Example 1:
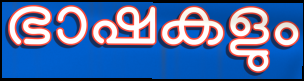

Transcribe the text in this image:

ഭാഷകളും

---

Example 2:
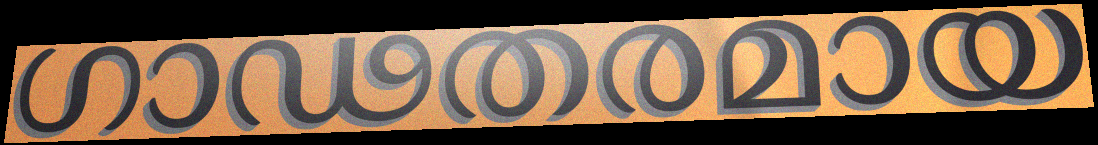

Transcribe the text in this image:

ഗാഢതരമായ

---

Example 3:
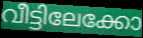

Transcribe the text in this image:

വീട്ടിലേക്കോ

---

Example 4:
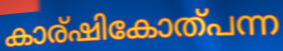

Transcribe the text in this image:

കാര്ഷികോത്പന്ന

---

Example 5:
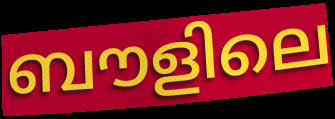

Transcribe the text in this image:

ബൗളിലെ